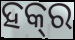
ହକ୍‌ର